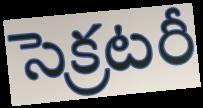
సెక్రటరీ